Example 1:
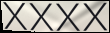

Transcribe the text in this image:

xxxx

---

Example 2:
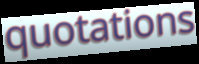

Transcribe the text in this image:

quotations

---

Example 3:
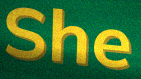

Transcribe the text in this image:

She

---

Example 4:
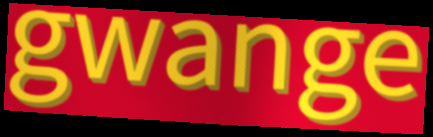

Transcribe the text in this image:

gwange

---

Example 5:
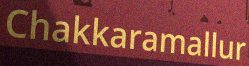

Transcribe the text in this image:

Chakkaramallur